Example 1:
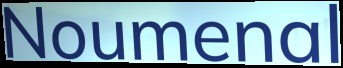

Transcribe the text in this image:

Noumenal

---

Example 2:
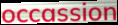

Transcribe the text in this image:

occassion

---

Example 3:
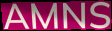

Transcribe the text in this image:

AMNS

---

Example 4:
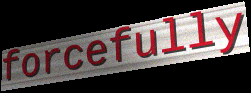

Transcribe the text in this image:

forcefully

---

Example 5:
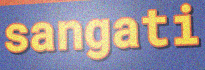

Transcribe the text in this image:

sangati